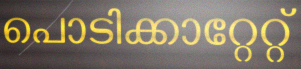
പൊടിക്കാറ്റേറ്റ്